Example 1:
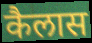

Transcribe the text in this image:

कैलास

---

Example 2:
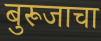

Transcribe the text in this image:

बुरूजाचा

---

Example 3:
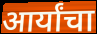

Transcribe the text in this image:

आर्यांचा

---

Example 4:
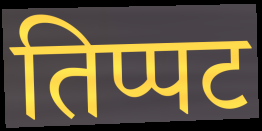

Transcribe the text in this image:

तिप्पट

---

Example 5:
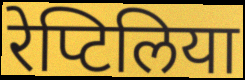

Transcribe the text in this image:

रेप्टिलिया